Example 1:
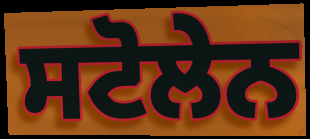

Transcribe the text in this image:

ਸਟੋਲੇਨ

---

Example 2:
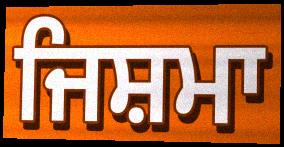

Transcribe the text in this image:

ਜਿਸ਼ਮਾ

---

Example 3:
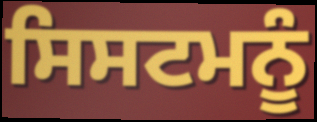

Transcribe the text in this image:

ਸਿਸਟਮਨੂੰ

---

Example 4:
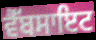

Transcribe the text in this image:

ਵੈੱਬਸਾਇਟ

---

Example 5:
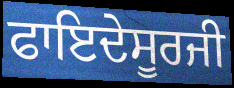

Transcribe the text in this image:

ਫਾਇਦੇਸੂਰਜੀ